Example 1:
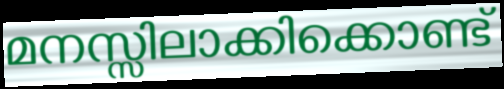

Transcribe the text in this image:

മനസ്സിലാക്കിക്കൊണ്ട്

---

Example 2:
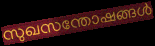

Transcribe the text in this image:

സുഖസന്തോഷങ്ങൾ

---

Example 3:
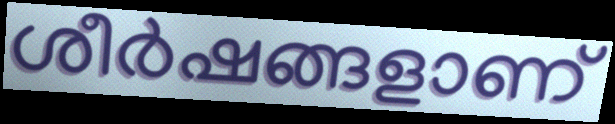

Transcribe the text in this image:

ശീർഷങ്ങളാണ്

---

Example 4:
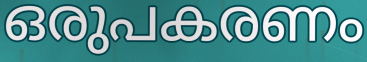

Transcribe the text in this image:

ഒരുപകരണം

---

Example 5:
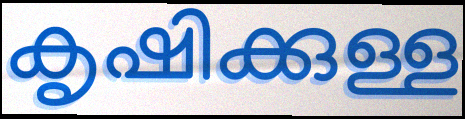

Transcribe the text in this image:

കൃഷിക്കുള്ള